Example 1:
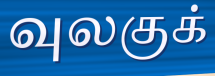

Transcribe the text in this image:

வுலகுக்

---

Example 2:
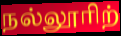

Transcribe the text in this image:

நல்லூரிற்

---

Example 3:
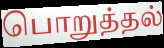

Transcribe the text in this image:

பொறுத்தல்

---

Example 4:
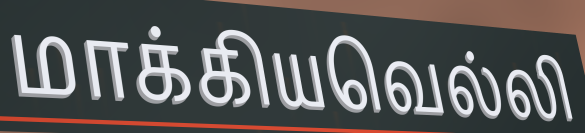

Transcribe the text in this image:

மாக்கியவெல்லி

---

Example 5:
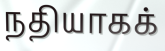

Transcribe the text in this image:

நதியாகக்